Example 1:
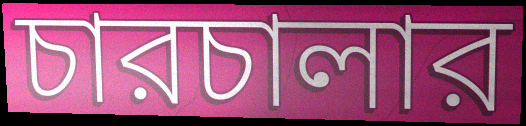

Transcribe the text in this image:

চারচালার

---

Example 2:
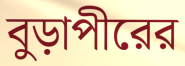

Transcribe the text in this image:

বুড়াপীরের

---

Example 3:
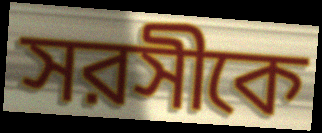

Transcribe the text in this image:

সরসীকে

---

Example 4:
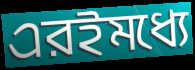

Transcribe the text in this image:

এরইমধ্যে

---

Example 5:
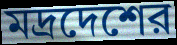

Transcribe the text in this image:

মদ্রদেশের